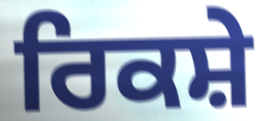
ਰਿਕਸ਼ੇ